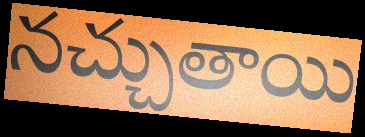
నచ్చుతాయి